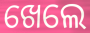
ଖେଲେ